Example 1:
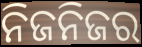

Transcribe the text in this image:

ନିଜନିଜର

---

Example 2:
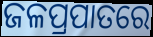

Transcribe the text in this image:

ଜଳପ୍ରପାତରେ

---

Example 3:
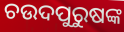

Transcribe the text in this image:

ଚଉଦପୁରୁଷଙ୍କ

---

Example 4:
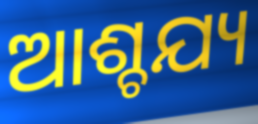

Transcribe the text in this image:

ଆଶ୍ଚଯ୍ୟ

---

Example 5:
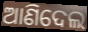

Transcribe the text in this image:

ଆଣିଦେଲ